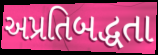
અપ્રતિબદ્ધતા